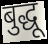
बुद्धू